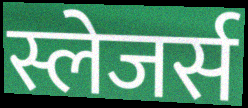
स्लेजर्स